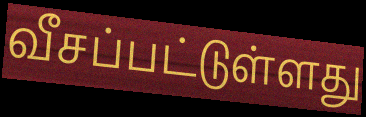
வீசப்பட்டுள்ளது